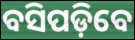
ବସିପଡ଼ିବେ